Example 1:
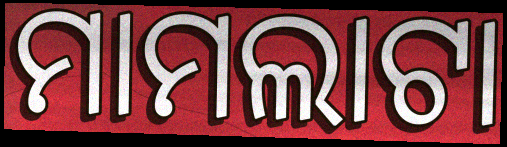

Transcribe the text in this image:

ମାମଲାଟା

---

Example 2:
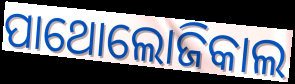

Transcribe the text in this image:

ପାଥୋଲୋଜିକାଲ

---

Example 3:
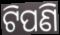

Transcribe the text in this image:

ଟିପଣି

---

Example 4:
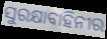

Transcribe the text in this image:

ସୁରକ୍ଷାବାହିନୀର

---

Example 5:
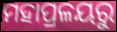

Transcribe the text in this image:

ମହାପ୍ରଳୟରୁ